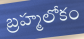
బ్రహ్మలోకం